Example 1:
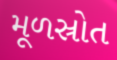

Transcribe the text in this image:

મૂળસ્રોત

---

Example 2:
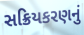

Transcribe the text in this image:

સક્રિયકરણનું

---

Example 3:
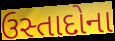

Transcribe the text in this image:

ઉસ્તાદોના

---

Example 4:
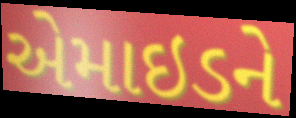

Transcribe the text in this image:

એમાઇડને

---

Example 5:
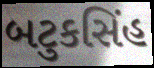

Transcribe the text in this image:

બટુકસિંહ